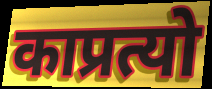
काप्रत्यो